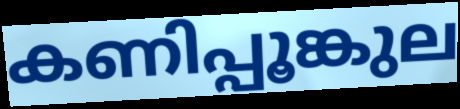
കണിപ്പൂങ്കുല